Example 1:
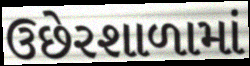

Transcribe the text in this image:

ઉછેરશાળામાં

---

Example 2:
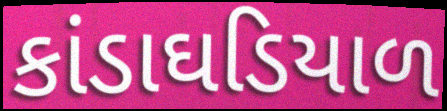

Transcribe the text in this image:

કાંડાઘડિયાળ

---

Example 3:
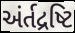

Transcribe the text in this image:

અંર્તદ્રષ્ટિ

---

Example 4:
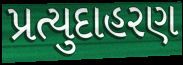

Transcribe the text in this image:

પ્રત્યુદાહરણ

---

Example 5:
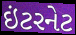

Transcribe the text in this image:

ઇંટરનેટ